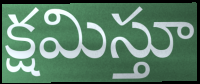
క్షమిస్తూ